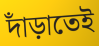
দাঁড়াতেই